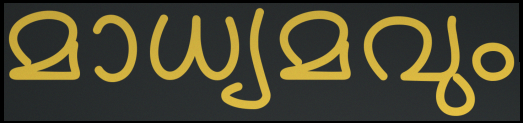
മാധ്യമവും